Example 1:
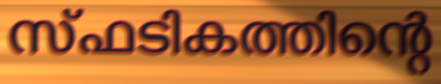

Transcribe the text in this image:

സ്ഫടികത്തിന്റെ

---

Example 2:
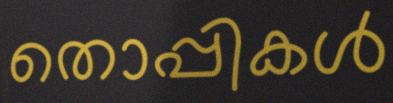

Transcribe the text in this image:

തൊപ്പികൾ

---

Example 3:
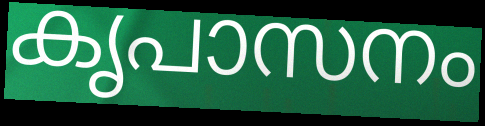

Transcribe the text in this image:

കൃപാസനം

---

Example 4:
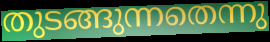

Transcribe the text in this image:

തുടങ്ങുന്നതെന്നു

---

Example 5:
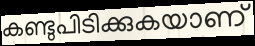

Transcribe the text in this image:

കണ്ടുപിടിക്കുകയാണ്